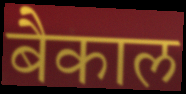
बैकाल